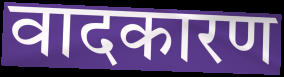
वादकारण